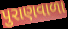
પુરાણવાળા